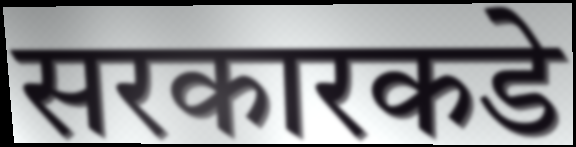
सरकारकडे